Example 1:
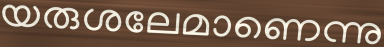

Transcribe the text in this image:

യരുശലേമാണെന്നു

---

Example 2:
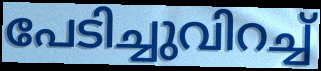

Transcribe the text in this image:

പേടിച്ചുവിറച്ച്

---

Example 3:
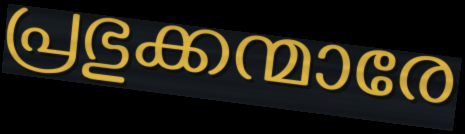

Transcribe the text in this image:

പ്രഭുക്കന്മാരേ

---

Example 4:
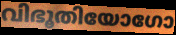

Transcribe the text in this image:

വിഭൂതിയോഗോ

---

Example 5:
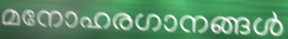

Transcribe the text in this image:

മനോഹരഗാനങ്ങൾ